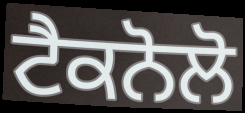
ਟੈਕਨੋਲੋ